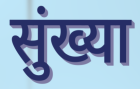
सुंख्या